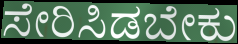
ಸೇರಿಸಿಡಬೇಕು